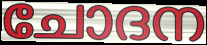
ചോദന